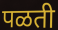
पळती